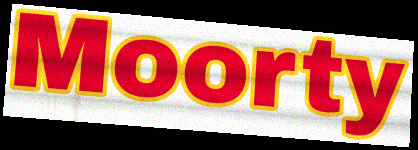
Moorty